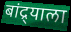
बांद्र्याला